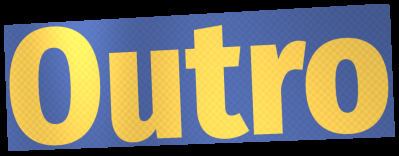
Outro